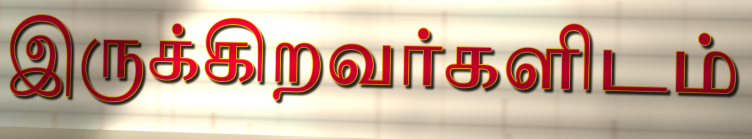
இருக்கிறவர்களிடம்